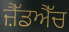
ਜ਼ੈੱਡਐੱਚ